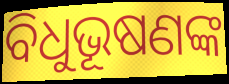
ବିଧୁଭୂଷଣଙ୍କ